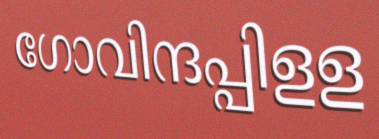
ഗോവിന്ദപ്പിളള